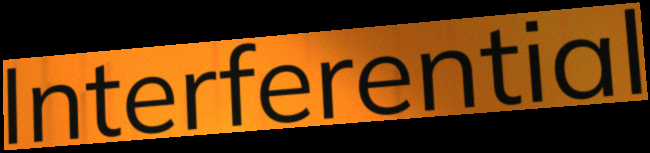
Interferential